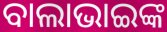
ବାଲାଭାଇଙ୍କ